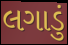
લગાડું